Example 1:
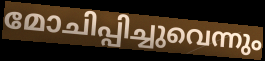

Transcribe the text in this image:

മോചിപ്പിച്ചുവെന്നും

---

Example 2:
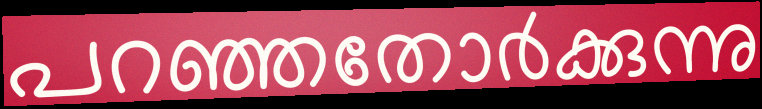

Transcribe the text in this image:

പറഞ്ഞതോർക്കുന്നു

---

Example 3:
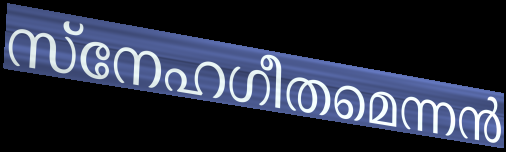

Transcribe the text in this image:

സ്നേഹഗീതമെന്നൻ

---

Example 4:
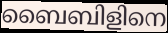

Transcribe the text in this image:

ബൈബിളിനെ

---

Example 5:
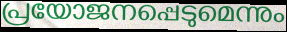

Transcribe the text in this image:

പ്രയോജനപ്പെടുമെന്നും